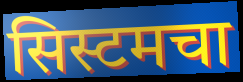
सिस्टमचा